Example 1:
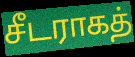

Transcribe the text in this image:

சீடராகத்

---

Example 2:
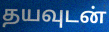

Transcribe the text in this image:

தயவுடன்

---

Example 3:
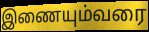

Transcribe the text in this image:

இணையும்வரை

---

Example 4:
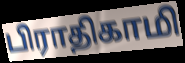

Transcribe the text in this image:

பிராதிகாமி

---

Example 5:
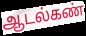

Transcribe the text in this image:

ஆடல்கண்